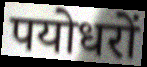
पयोधरों